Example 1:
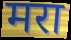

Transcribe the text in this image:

मरा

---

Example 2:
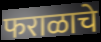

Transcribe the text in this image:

फराळाचे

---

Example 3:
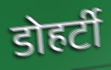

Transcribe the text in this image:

डोहर्टी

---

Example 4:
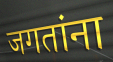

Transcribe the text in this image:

जगतांना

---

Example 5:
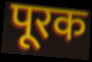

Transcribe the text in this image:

पूरक